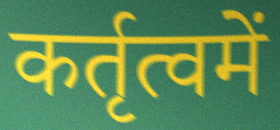
कर्तृत्वमें